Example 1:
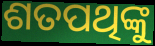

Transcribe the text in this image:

ଶତପଥିଙ୍କୁ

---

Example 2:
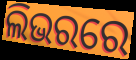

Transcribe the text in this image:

ଲିଭରରେ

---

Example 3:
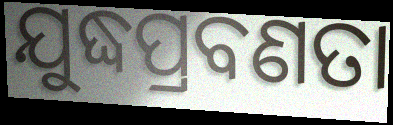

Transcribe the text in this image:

ଯୁଦ୍ଧପ୍ରବଣତା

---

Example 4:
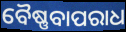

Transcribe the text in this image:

ବୈଷ୍ଣବାପରାଧ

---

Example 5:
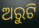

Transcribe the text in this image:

ଅରୁଟି